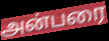
அன்பரை